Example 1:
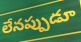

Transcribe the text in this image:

లేనప్పుడూ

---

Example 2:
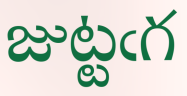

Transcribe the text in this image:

జుట్టఁగ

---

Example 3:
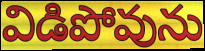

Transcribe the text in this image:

విడిపోవును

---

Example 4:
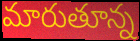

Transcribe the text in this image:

మారుతూన్న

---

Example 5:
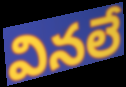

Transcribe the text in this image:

వినలే